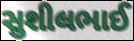
સુશીલભાઈ